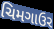
ચિમગાઉર